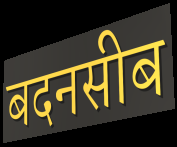
बदनसीब